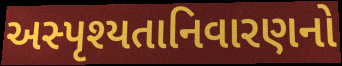
અસ્પૃશ્યતાનિવારણનો